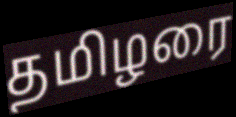
தமிழரை